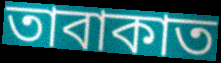
তাবাকাত